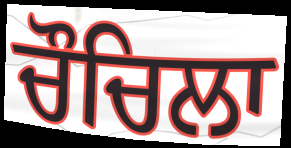
ਚੌਚਿਲਾ